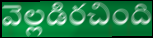
వెల్లడిరచింది